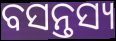
ବସନ୍ତସ୍ୟ